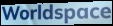
Worldspace